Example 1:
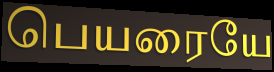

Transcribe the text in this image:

பெயரையே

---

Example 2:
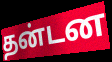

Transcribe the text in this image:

தன்டன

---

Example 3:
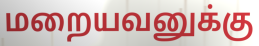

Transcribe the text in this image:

மறையவனுக்கு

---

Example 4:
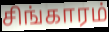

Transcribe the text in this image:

சிங்காரம்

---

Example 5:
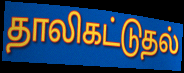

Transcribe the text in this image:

தாலிகட்டுதல்